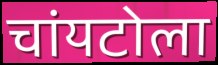
चांयटोला